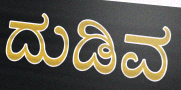
ದುಡಿವ